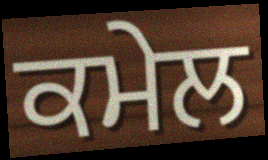
ਕਮੇਲ